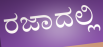
ರಜಾದಲ್ಲಿ